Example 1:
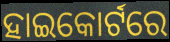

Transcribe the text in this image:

ହାଇକୋର୍ଟରେ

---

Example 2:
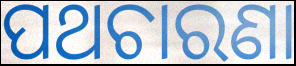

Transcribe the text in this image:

ପଥଚାରଣା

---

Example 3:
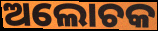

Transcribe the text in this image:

ଅଲୋଚକ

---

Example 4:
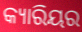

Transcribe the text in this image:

କ୍ୟାରିୟର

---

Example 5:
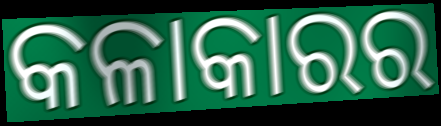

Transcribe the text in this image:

କଳାକାରର